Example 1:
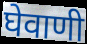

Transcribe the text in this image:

घेवाणी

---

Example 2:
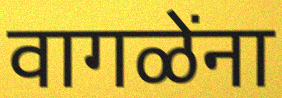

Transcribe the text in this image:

वागळेंना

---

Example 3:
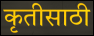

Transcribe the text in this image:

कृतीसाठी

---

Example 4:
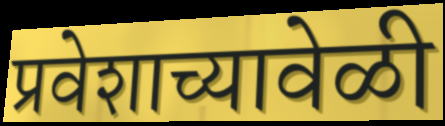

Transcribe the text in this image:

प्रवेशाच्यावेळी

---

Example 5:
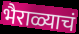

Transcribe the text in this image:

भैराळ्याचं